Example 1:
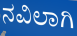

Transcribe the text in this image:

ನವಿಲಾಗಿ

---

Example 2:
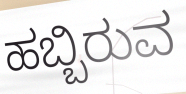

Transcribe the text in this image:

ಹಬ್ಬಿರುವ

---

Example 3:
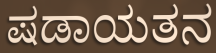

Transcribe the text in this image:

ಷಡಾಯತನ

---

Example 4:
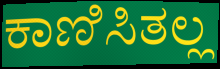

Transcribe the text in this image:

ಕಾಣಿಸಿತಲ್ಲ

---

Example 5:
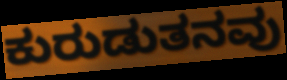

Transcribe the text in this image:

ಕುರುಡುತನವು